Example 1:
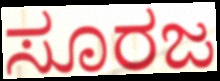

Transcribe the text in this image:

ಸೂರಜ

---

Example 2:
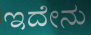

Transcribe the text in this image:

ಇದೇನು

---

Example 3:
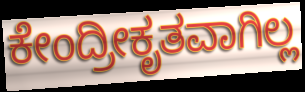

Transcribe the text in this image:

ಕೇಂದ್ರೀಕೃತವಾಗಿಲ್ಲ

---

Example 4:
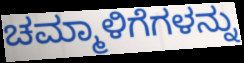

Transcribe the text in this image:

ಚಮ್ಮಾಳಿಗೆಗಳನ್ನು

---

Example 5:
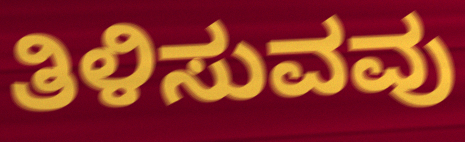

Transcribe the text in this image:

ತಿಳಿಸುವವು